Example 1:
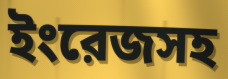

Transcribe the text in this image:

ইংরেজসহ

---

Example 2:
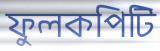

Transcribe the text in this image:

ফুলকপিটি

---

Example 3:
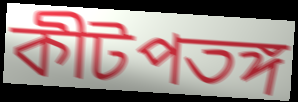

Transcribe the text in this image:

কীটপতঙ্গ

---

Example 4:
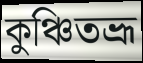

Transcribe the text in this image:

কুঞ্চিতভ্রূ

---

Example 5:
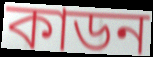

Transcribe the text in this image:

কাডন